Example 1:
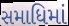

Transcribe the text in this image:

સમાધિમાં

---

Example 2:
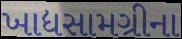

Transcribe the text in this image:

ખાદ્યસામગ્રીના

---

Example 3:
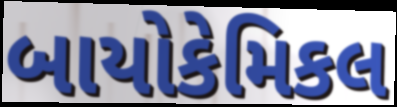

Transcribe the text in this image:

બાયોકેમિકલ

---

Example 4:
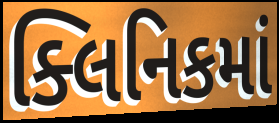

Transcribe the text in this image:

ક્લિનિકમાં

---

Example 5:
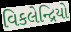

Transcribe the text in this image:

વિકલેન્દ્રિયો